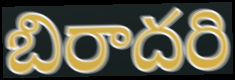
బిరాదరి